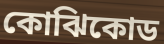
কোঝিকোড